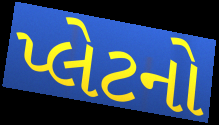
પ્લેટનો